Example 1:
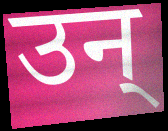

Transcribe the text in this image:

उन्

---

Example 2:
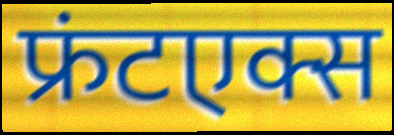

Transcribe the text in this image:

फ्रंटएक्स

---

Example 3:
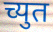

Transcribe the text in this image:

च्‍युत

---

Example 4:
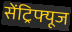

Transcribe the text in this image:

सेंट्रिफ्यूज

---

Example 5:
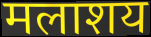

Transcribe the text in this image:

मलाशय